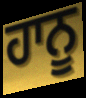
ਹਾਨੂ